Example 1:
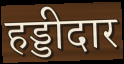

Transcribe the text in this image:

हड्डीदार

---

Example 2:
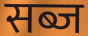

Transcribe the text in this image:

सब्ज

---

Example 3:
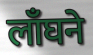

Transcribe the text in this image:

लाँघने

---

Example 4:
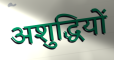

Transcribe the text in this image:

अशुद्धियों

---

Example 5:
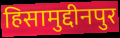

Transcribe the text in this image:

हिसामुद्दीनपुर